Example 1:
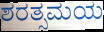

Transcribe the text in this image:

ಶರತ್ಸಮಯ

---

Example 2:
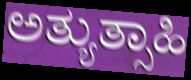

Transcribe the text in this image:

ಅತ್ಯುತ್ಸಾಹಿ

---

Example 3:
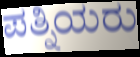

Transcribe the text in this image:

ಪತ್ನಿಯರು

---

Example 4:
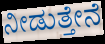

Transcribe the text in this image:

ನೀಡುತ್ತೇನೆ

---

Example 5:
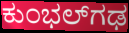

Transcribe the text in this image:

ಕುಂಭಲ್‌ಗಢ